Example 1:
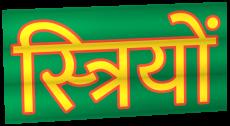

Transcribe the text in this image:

स्‍त्रियों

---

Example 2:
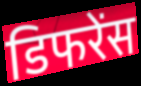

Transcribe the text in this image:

डिफरेंस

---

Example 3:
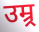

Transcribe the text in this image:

उम्र्र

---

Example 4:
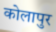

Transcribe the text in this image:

कोलापुर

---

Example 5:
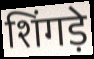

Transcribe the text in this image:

शिंगड़े